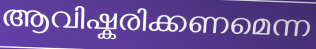
ആവിഷ്കരിക്കണമെന്ന